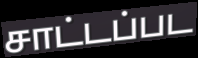
சாட்டப்பட